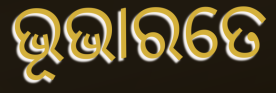
ଭୂଭାରତେ